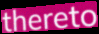
thereto